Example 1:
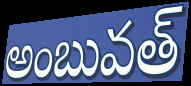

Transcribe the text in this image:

అంబువత్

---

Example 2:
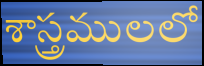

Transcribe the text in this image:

శాస్త్రములలో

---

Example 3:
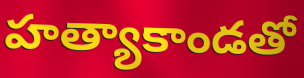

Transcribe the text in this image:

హత్యాకాండతో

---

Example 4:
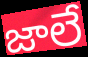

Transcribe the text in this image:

జాలే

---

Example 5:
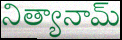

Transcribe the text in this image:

నిత్యానామ్